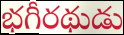
భగీరథుడు